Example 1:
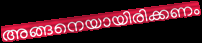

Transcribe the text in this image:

അങ്ങനെയായിരിക്കണം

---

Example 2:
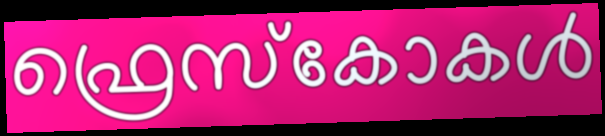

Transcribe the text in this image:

ഫ്രെസ്കോകൾ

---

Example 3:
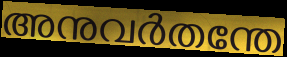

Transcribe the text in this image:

അനുവർതന്തേ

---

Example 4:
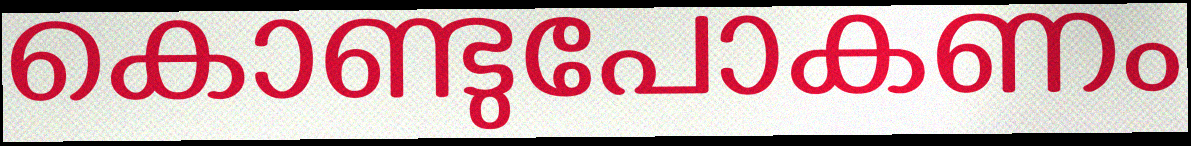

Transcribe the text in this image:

കൊണ്ടുപോകണം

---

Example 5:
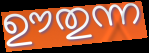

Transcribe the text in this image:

ഊതുന്ന